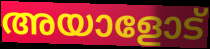
അയാളോട്